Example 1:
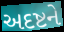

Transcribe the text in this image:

અદષ્ટને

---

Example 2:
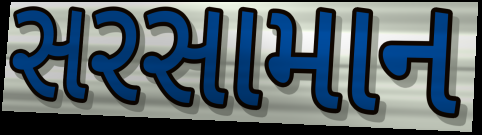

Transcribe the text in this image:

સરસામાન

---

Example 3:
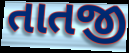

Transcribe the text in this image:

તાતજી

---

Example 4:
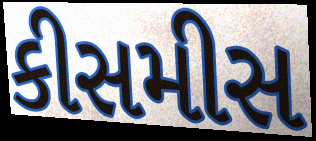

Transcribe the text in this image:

કીસમીસ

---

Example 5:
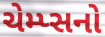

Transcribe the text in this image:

ચેમ્પ્સનો